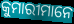
କୁମାରୀମାନେ